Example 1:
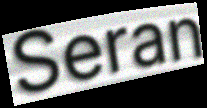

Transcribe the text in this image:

Seran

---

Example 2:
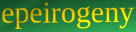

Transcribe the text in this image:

epeirogeny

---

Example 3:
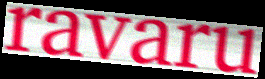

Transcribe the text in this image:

ravaru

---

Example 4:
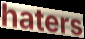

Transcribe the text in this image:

haters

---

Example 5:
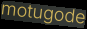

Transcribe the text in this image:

motugode